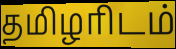
தமிழரிடம்